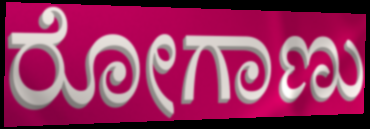
ರೋಗಾಣು